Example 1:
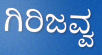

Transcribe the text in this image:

ಗಿರಿಜವ್ವ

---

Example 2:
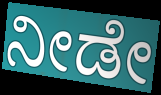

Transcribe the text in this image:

ನೀಡೇ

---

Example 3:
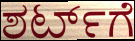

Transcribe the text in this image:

ಶರ್ಟ್‌ಗೆ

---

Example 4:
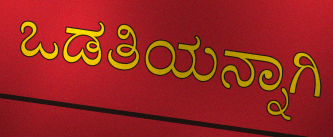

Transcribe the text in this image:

ಒಡತಿಯನ್ನಾಗಿ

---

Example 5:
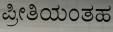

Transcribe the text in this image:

ಪ್ರೀತಿಯಂತಹ